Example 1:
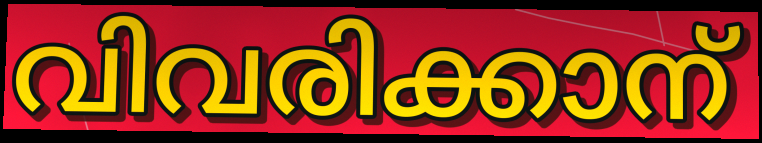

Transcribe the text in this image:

വിവരിക്കാന്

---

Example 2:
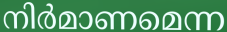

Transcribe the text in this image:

നിർമാണമെന്ന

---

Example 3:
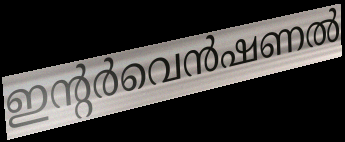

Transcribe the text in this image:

ഇന്റർവെൻഷണൽ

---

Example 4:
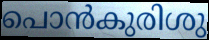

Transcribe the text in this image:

പൊൻകുരിശു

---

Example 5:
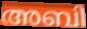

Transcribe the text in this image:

അബി